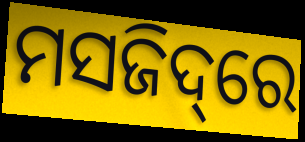
ମସଜିଦ୍‌ରେ